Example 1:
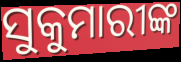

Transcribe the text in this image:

ସୁକୁମାରୀଙ୍କ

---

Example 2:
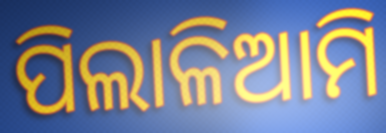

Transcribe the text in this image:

ପିଲାଳିଆମି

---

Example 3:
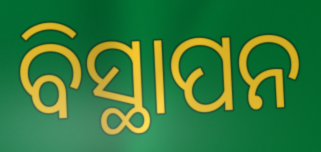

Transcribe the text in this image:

ବିସ୍ଥାପନ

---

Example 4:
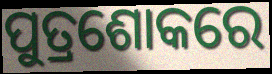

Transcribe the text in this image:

ପୁତ୍ରଶୋକରେ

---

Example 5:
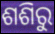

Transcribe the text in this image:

ଶଶିରୁ